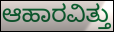
ಆಹಾರವಿತ್ತು